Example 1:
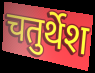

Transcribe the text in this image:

चतुर्थेश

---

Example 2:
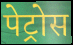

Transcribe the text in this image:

पेट्रोस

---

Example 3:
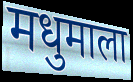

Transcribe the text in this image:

मधुमाला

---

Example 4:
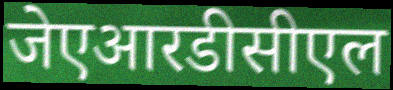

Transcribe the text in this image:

जेएआरडीसीएल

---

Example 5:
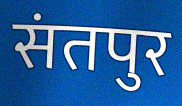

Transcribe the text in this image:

संतपुर